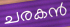
ചരകൻ